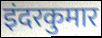
इंदरकुमार